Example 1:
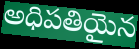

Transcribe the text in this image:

అధిపతియైన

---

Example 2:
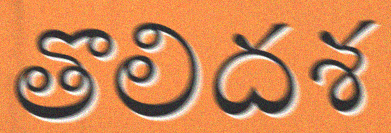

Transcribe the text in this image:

తొలిదశ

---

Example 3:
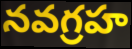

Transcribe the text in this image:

నవగ్రహ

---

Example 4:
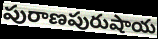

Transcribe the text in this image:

పురాణపురుషాయ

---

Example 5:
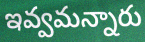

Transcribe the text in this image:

ఇవ్వమన్నారు